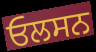
ਓਲਸਨ